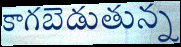
కాగబెడుతున్న